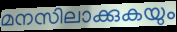
മനസിലാക്കുകയും